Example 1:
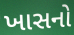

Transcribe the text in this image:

ખાસનો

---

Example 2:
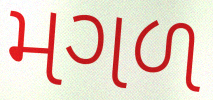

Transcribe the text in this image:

મગળ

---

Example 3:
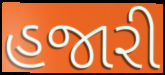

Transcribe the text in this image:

હજારી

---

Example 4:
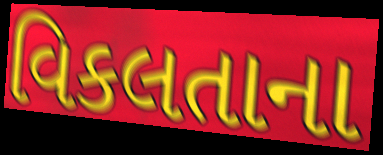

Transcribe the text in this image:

વિકલતાના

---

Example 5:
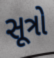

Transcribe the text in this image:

સૂત્રો